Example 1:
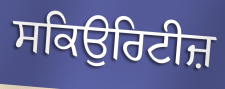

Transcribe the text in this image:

ਸਕਿਉਰਿਟੀਜ਼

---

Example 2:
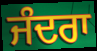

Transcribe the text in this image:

ਜੰਦਰਾ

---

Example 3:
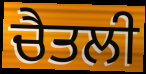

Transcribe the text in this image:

ਚੈਤਲੀ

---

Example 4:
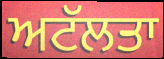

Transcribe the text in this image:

ਅਟੱਲਤਾ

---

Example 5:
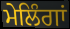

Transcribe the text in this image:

ਮੇਲਿੰਗਾਂ